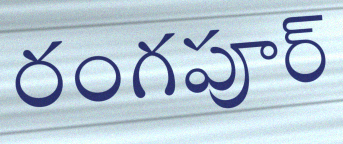
రంగపూర్